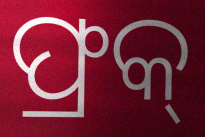
ଫ୍ରକ୍